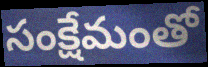
సంక్షేమంతో